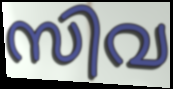
സിവ